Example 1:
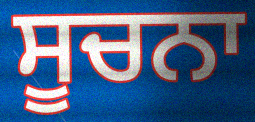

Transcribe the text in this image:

ਸੂਚਨਾ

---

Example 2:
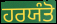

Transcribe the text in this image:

ਹਰਯੰਤੋ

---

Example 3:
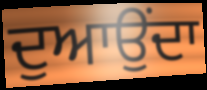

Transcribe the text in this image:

ਦੁਆਉਂਦਾ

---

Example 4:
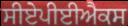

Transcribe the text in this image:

ਸੀਏਪੀਈਐਕਸ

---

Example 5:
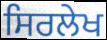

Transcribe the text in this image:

ਸਿਰਲੇਖ